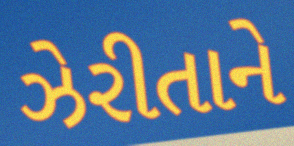
ઝેરીતાને